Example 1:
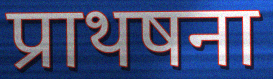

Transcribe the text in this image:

प्राथषना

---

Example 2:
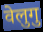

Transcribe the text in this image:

वेलुगु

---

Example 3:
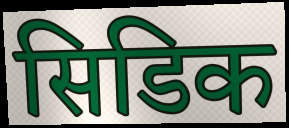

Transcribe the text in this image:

सिडिक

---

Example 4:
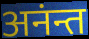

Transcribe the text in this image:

अनंन्त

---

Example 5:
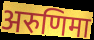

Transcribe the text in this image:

अरुणिमा